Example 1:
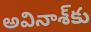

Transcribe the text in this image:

అవినాశ్‌కు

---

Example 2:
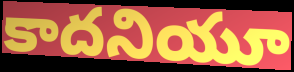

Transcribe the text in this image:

కాదనియూ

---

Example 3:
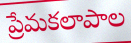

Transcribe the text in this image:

ప్రేమకలాపాల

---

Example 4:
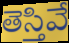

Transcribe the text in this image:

తెస్తివే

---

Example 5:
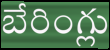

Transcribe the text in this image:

బేరింగ్లు